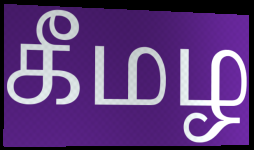
கீமழ